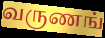
வருணங்